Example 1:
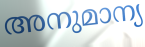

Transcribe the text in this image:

അനുമാന്യ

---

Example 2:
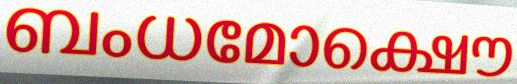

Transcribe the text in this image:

ബംധമോക്ഷൌ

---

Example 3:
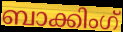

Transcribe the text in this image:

ബാക്കിംഗ്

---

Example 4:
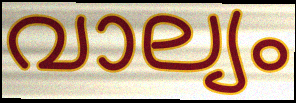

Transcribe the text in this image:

വാല്യം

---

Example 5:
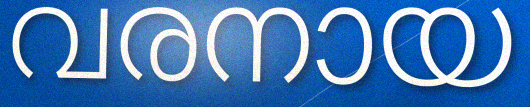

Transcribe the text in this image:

വരനായ